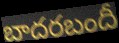
బాదరబందీ